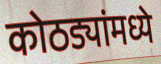
कोठड्यांमध्ये